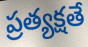
ప్రత్యక్షతే